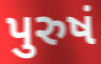
પુરુષં